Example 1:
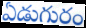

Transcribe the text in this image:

ఏడుగురం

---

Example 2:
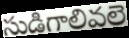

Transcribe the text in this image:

సుడిగాలివలె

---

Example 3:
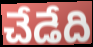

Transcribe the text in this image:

చేడేది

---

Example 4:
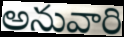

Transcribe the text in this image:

అనువారి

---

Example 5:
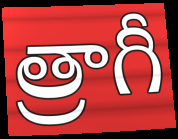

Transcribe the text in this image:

త్రాగీ